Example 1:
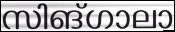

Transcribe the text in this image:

സിങ്ഗാലാ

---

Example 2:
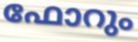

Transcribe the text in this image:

ഫോറും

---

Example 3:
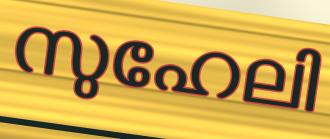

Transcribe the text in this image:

സുഹേലി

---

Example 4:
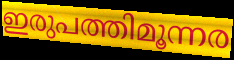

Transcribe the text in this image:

ഇരുപത്തിമൂന്നര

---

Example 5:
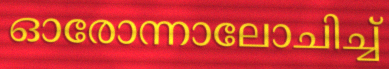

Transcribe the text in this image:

ഓരോന്നാലോചിച്ച്